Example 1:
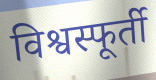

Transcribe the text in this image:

विश्वस्फूर्ती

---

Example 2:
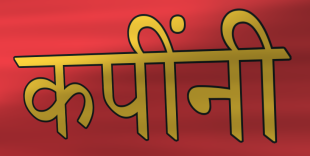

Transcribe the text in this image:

कपींनी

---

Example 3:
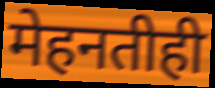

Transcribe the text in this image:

मेहनतीही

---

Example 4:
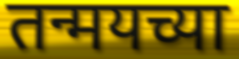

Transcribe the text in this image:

तन्मयच्या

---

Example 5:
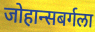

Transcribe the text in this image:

जोहान्सबर्गला